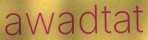
awadtat